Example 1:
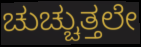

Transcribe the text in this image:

ಚುಚ್ಚುತ್ತಲೇ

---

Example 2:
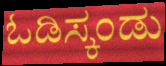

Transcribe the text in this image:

ಓಡಿಸ್ಕಂಡು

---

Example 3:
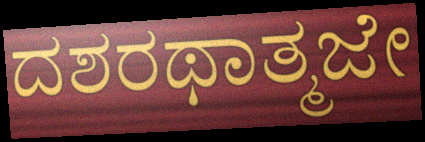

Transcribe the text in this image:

ದಶರಥಾತ್ಮಜೇ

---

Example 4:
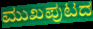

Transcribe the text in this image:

ಮುಖಪುಟದ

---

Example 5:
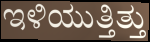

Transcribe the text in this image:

ಇಳಿಯುತ್ತಿತ್ತು